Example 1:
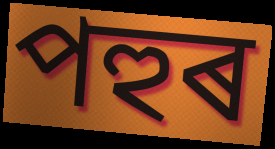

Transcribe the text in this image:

পহুৰ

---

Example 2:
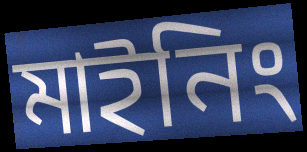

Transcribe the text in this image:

মাইনিং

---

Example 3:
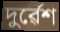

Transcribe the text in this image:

দুৰ্ৱেশ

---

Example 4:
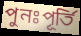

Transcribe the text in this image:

পুনঃপূৰ্তি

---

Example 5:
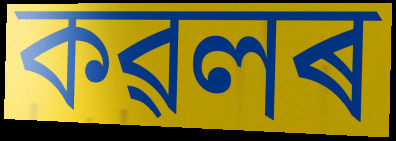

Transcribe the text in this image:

কৱলৰ